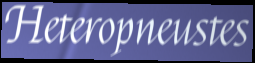
Heteropneustes